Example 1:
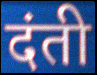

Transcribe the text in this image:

दंती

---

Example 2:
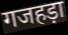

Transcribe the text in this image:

गजहड़ा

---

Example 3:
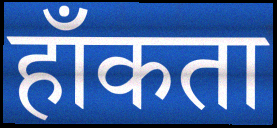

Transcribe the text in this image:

हाँकता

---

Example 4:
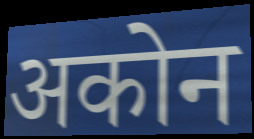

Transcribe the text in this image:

अकोन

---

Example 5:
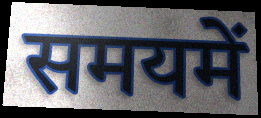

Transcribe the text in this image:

समयमें